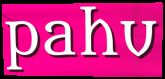
pahu